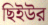
ছিইউর